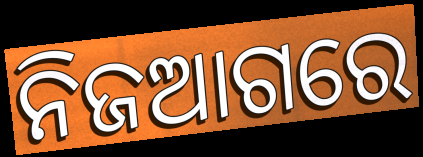
ନିଜଆଗରେ